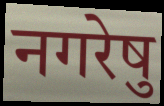
नगरेषु